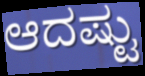
ಆದಷ್ಟು